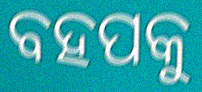
ବହପକୁ